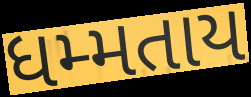
ધમ્મતાય